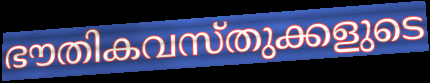
ഭൗതികവസ്തുക്കളുടെ